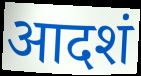
आदशं